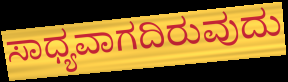
ಸಾಧ್ಯವಾಗದಿರುವುದು